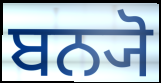
ਬਨ੍ਯੋ